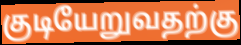
குடியேறுவதற்கு